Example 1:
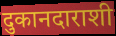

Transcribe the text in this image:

दुकानदाराशी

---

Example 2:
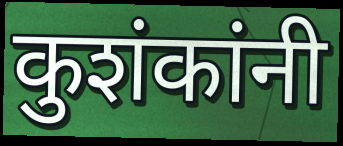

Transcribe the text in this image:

कुशंकांनी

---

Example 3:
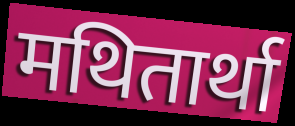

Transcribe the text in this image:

मथितार्था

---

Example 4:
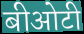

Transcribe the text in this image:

बीओटी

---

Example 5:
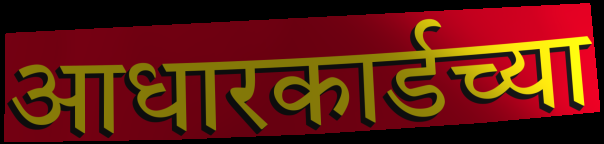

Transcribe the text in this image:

आधारकार्डच्या